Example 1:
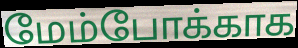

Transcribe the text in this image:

மேம்போக்காக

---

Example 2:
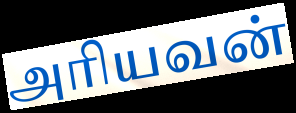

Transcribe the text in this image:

அரியவன்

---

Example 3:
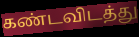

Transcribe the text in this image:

கண்டவிடத்து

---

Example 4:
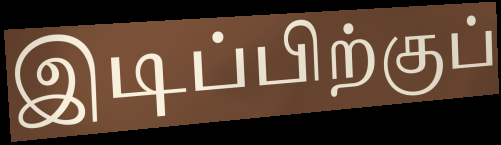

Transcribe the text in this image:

இடிப்பிற்குப்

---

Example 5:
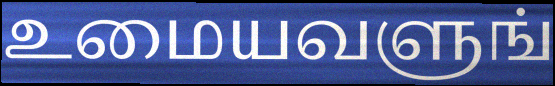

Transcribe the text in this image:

உமையவளுங்